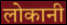
लोकानी